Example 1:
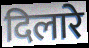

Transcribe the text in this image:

दिलारे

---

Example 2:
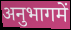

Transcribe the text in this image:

अनुभागमें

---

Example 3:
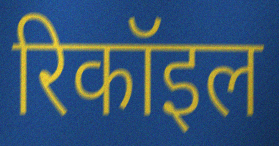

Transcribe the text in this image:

रिकॉइल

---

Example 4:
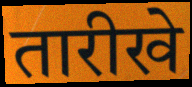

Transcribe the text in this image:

तारीखे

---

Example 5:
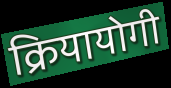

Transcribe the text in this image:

क्रियायोगी